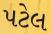
પટેલ